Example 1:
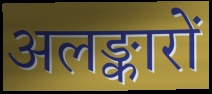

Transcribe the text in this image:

अलङ्कारों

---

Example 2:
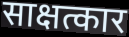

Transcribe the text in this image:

साक्षत्कार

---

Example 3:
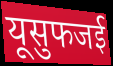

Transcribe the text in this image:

यूसुफजई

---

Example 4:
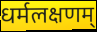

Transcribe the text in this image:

धर्मलक्षणम्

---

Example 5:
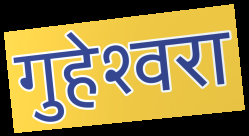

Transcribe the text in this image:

गुहेश्वरा